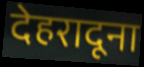
देहरादूना